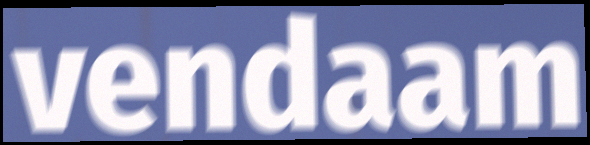
vendaam